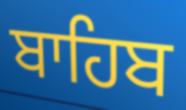
ਬਾਹਿਬ